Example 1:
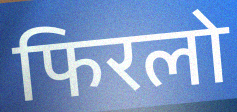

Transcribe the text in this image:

फिरलो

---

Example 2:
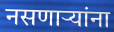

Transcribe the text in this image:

नसणाऱ्यांना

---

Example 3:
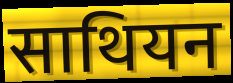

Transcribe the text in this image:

साथियन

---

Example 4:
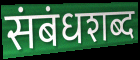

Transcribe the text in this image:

संबंधशब्द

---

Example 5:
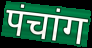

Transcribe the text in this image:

पंचांग